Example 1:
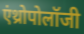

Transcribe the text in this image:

एंथ्रोपोलॉजी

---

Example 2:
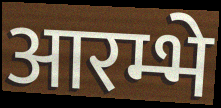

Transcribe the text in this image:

आरम्भे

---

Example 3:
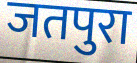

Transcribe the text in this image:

जतपुरा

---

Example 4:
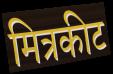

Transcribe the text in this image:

मित्रकीट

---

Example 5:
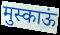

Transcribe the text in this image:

मुस्काऊं